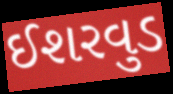
ઈશરવુડ